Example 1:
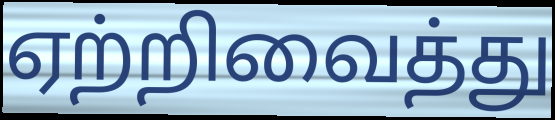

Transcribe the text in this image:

ஏற்றிவைத்து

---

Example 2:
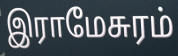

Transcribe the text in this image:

இராமேசுரம்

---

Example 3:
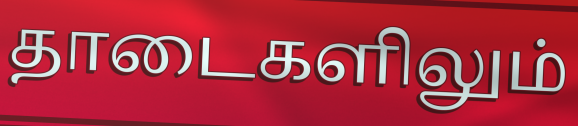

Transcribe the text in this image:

தாடைகளிலும்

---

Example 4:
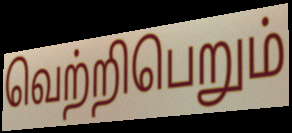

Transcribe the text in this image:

வெற்றிபெறும்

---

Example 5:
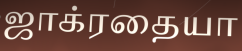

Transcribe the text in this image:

ஜாக்ரதையா